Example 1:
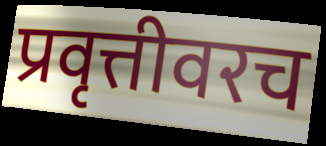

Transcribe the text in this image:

प्रवृत्तीवरच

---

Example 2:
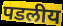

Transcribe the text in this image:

पडलीय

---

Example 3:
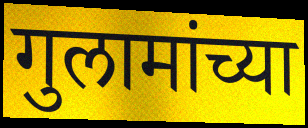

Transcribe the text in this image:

गुलामांच्या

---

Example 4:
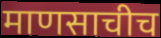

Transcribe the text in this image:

माणसाचीच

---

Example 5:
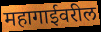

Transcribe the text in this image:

महागाईवरील